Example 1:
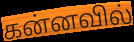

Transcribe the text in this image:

கன்னவில்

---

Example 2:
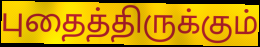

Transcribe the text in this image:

புதைத்திருக்கும்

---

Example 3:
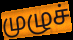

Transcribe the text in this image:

முழுச்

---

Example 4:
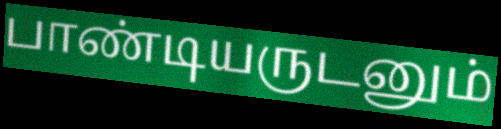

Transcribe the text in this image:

பாண்டியருடனும்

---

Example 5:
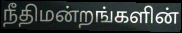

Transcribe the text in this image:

நீதிமன்றங்களின்